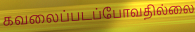
கவலைப்படப்போவதில்லை